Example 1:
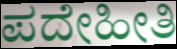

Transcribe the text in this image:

ಪದೇಹೀತಿ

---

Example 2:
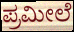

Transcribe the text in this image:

ಪ್ರಮೀಲೆ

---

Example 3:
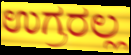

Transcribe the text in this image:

ಉಗ್ರರಲ್ಲ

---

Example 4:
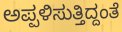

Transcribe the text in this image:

ಅಪ್ಪಳಿಸುತ್ತಿದ್ದಂತೆ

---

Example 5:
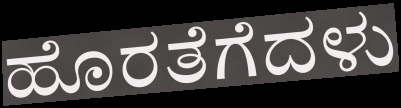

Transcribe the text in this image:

ಹೊರತೆಗೆದಳು